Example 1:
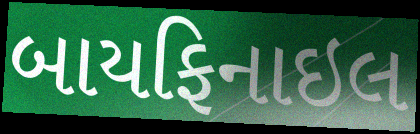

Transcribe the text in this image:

બાયફિનાઇલ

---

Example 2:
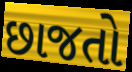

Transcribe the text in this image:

છાજતો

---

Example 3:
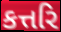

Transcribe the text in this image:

કત્તરિ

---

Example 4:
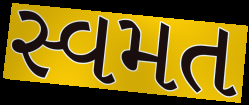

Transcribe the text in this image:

સ્વમત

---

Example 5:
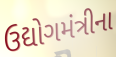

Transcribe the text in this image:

ઉદ્યોગમંત્રીના